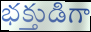
భక్తుడిగా